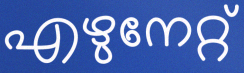
എഴുനേറ്റ്